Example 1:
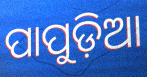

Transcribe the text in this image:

ପାପୁଡ଼ିଆ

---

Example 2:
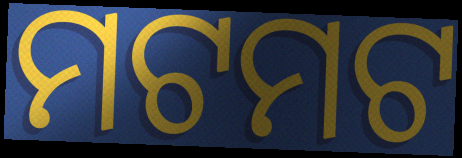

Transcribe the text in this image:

ମଟମଟ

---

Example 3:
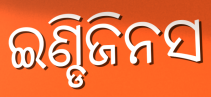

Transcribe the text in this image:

ଇଣ୍ଡିଜିନସ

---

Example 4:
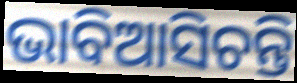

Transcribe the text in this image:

ଭାବିଆସିଚନ୍ତି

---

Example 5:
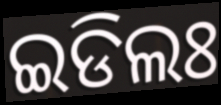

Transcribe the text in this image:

ଇଡିଲଃ